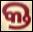
କ୍ତ